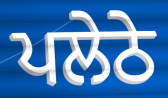
ਪਲੇਠੇ